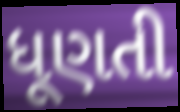
ધૂણતી